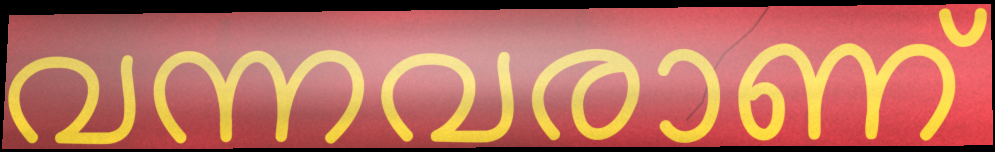
വന്നവരാണ്